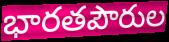
భారతపౌరుల